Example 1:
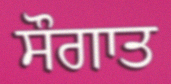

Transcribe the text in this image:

ਸੌਗਾਤ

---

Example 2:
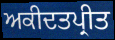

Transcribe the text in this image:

ਅਕੀਦਤਪ੍ਰੀਤ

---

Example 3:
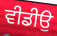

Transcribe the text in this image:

ਵੀਡੀਉ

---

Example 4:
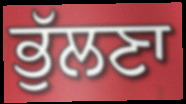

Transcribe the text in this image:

ਭੁੱਲਣਾ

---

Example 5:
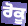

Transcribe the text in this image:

ਰੋਕੂ